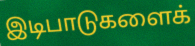
இடிபாடுகளைக்